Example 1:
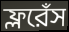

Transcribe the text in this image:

ফ্লরেঁস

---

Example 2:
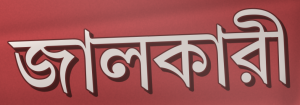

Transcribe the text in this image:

জালকারী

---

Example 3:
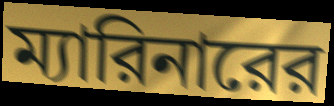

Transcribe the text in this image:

ম্যারিনারের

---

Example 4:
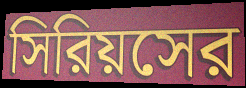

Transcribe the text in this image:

সিরিয়সের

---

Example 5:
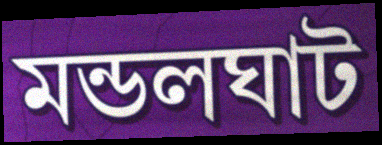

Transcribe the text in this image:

মন্ডলঘাট